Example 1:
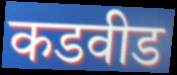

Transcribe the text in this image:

कडवीड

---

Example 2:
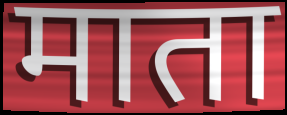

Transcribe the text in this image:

माता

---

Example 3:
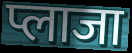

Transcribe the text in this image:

प्लाजा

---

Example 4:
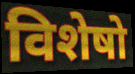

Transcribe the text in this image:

विशेषो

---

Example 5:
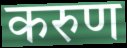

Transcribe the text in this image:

करुण